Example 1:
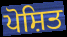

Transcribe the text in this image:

ਪੋਸ਼ਿਤ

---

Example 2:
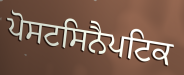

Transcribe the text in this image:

ਪੋਸਟਸਿਨੈਪਟਿਕ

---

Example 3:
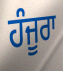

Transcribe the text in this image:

ਹੰਜੂਰਾ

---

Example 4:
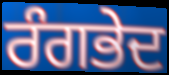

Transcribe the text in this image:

ਰੰਗਭੇਦ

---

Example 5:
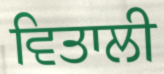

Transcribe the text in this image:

ਵਿਤਾਲੀ